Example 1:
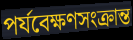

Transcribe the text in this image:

পর্যবেক্ষণসংক্রান্ত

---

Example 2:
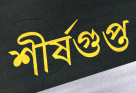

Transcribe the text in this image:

শীর্ষগুপ্ত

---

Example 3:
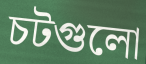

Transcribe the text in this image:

চটগুলো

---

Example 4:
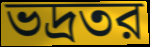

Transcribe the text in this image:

ভদ্রতর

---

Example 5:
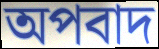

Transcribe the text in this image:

অপবাদ